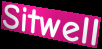
Sitwell